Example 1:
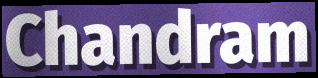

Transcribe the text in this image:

Chandram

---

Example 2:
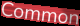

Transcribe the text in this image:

Common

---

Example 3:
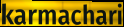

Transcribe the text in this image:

karmachari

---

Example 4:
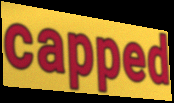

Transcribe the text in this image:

capped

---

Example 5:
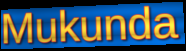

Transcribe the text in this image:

Mukunda